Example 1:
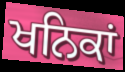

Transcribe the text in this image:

ਖਨਿਕਾਂ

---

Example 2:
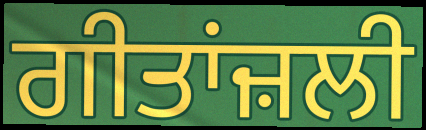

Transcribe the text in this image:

ਗੀਤਾਂਜ਼ਲੀ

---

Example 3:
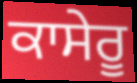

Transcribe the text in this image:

ਕਾਸੇਰੂ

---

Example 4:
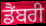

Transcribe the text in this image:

ਡੈਂਬਰੀ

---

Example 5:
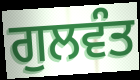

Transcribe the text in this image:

ਗੁਲਵੰਤ